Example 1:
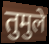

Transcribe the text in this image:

तुमुले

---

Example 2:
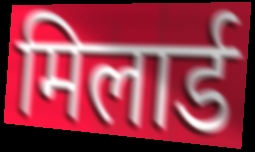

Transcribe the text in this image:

मिलार्ड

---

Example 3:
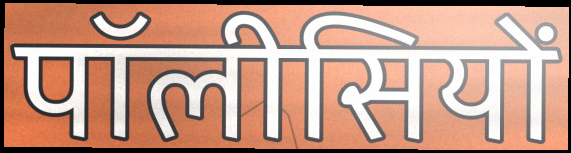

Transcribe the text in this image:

पॉलीसियों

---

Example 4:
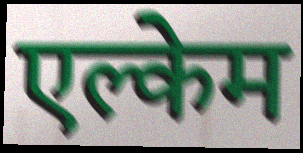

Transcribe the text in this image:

एल्केम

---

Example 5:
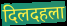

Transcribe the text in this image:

दिलदहला